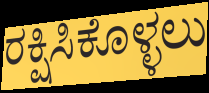
ರಕ್ಷಿಸಿಕೊಳ್ಳಲು